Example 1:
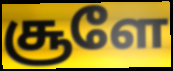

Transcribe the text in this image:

சூளே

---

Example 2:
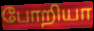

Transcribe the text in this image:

போறியா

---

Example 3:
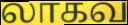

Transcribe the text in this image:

லாகவ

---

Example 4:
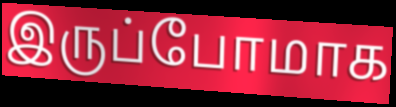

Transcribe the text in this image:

இருப்போமாக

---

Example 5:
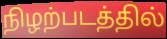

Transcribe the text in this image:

நிழற்படத்தில்